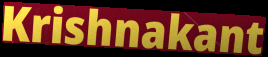
Krishnakant